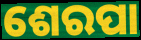
ଶେରପା